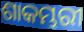
ଶାକମ୍ଭରୀ